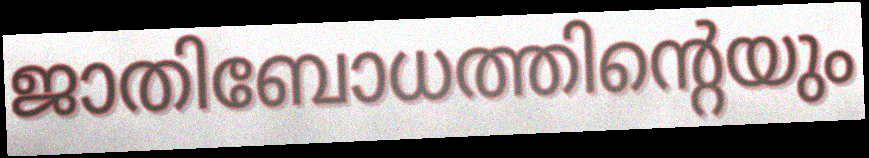
ജാതിബോധത്തിന്റെയും